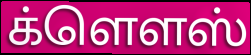
க்ளௌஸ்